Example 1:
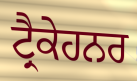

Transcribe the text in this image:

ਟ੍ਰੈਕੇਹਨਰ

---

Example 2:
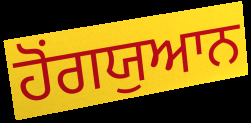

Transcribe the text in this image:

ਹੋਂਗਯੁਆਨ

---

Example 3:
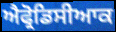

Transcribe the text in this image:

ਐਫ੍ਰੋਡਿਸੀਆਕ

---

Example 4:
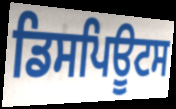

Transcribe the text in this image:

ਡਿਸਪਿਊਟਸ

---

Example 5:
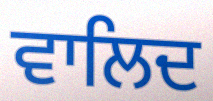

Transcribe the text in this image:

ਵਾਲਿਦ